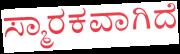
ಸ್ಮಾರಕವಾಗಿದೆ